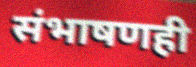
संभाषणही